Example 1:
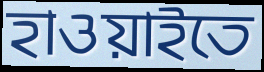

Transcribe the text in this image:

হাওয়াইতে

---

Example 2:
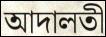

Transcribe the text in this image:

আদালতী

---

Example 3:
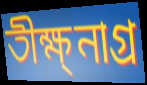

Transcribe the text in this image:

তীক্ষ্নাগ্র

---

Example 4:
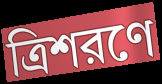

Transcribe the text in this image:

ত্রিশরণে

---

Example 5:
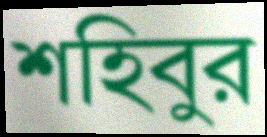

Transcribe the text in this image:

শহিবুর